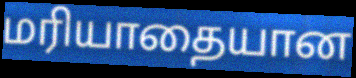
மரியாதையான